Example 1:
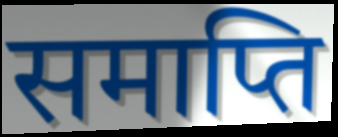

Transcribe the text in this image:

समाप्ति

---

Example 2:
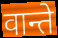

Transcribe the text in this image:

वान्ते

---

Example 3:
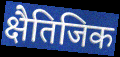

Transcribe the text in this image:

क्षैतिजिक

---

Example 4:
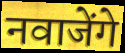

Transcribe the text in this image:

नवाजेंगे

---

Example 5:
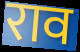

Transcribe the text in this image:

राव